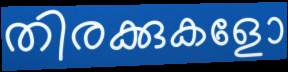
തിരക്കുകളോ